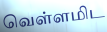
வெள்ளமிட